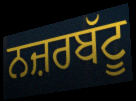
ਨਜ਼ਰਬੱਟੂ